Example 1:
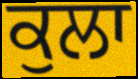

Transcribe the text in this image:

ਕੁਲਾ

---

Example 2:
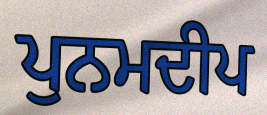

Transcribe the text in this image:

ਪੁਨਮਦੀਪ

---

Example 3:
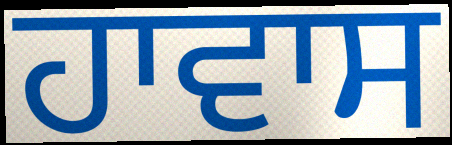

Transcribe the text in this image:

ਹਾਵਾਸ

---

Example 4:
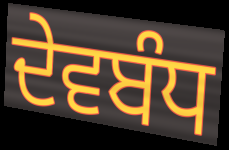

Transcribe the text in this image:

ਦੇਵਬੰਧ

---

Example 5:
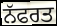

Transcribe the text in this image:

ਨੱਫਰਤ